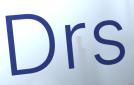
Drs